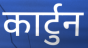
कार्टुन